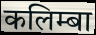
कलिम्बा